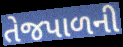
તેજપાળની